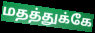
மதத்துக்கே